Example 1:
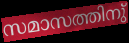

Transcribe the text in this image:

സമാസത്തിനു്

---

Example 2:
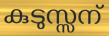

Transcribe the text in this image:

കുടുസ്സന്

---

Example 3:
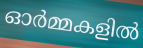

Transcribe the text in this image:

ഓർമ്മകളിൽ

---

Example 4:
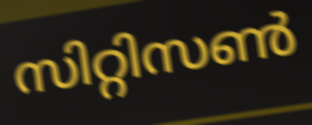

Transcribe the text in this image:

സിറ്റിസൺ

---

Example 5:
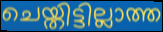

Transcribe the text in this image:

ചെയ്തിട്ടില്ലാത്ത